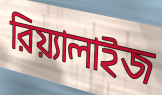
রিয়্যালাইজ